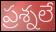
ప్రశ్నలే